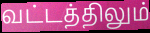
வட்டத்திலும்